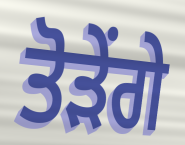
ਤੋੜੇਂਗੇ